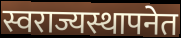
स्वराज्यस्थापनेत